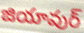
జియావుర్